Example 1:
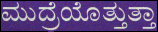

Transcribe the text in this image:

ಮುದ್ರೆಯೊತ್ತುತ್ತಾ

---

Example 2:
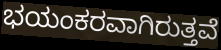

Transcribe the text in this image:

ಭಯಂಕರವಾಗಿರುತ್ತವೆ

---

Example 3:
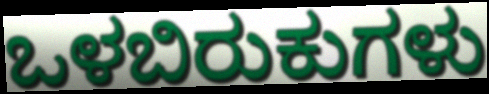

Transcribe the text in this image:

ಒಳಬಿರುಕುಗಳು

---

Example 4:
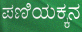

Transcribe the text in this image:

ಪಣಿಯಕ್ಕನ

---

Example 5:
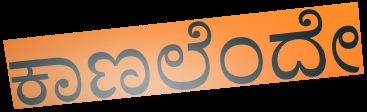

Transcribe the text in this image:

ಕಾಣಲೆಂದೇ